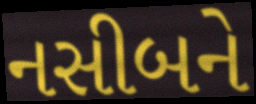
નસીબને